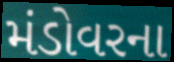
મંડોવરના